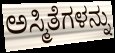
ಅಸ್ಮಿತೆಗಳನ್ನು